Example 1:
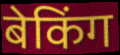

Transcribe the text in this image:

बेकिंग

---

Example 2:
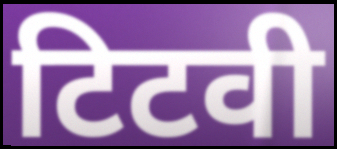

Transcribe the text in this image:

टिटवी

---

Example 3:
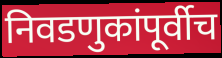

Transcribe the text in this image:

निवडणुकांपूर्वीच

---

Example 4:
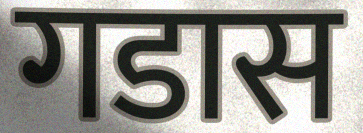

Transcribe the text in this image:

गडास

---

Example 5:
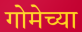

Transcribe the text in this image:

गोमेच्या